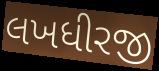
લખધીરજી